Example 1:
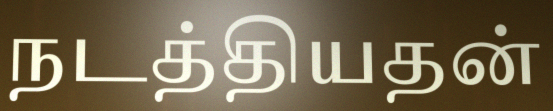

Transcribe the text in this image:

நடத்தியதன்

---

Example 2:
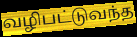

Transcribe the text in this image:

வழிபட்டுவந்த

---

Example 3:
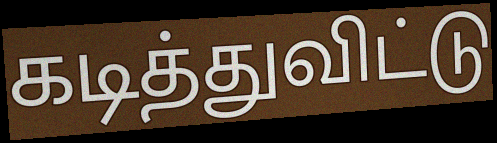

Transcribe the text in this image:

கடித்துவிட்டு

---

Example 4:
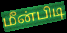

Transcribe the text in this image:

மீன்பிடி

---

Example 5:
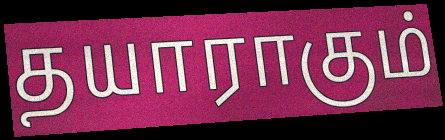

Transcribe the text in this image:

தயாராகும்